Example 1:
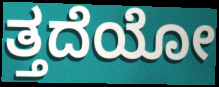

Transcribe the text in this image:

ತ್ತದೆಯೋ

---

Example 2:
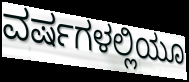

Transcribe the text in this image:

ವರ್ಷಗಳಲ್ಲಿಯೂ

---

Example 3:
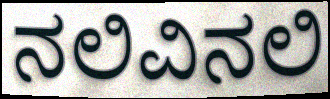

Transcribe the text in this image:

ನಲಿವಿನಲಿ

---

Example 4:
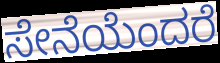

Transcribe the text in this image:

ಸೇನೆಯೆಂದರೆ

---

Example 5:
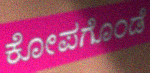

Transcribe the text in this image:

ಕೋಪಗೊಂಡೆ